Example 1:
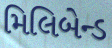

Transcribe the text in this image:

મિલિબેન્ડ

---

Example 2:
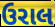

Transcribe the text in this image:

ઉરાલ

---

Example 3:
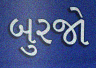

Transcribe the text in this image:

બુરજો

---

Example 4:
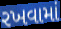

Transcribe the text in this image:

રખવામાં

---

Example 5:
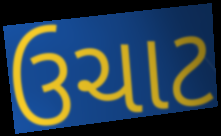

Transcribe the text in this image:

ઉચાટ